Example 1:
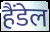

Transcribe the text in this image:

हैंडेल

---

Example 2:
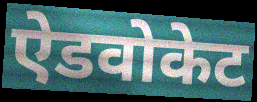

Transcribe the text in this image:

ऐडवोकेट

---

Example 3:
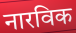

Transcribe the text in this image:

नारविक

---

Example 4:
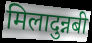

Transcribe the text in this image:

मिलादुन्नबी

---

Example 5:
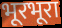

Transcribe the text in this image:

भूरभूरा